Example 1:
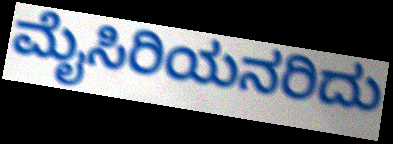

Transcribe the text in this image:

ಮೈಸಿರಿಯನರಿದು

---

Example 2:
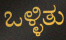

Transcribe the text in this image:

ಒಳ್ಳಿತು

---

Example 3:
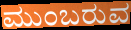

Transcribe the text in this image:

ಮುಂಬರುವ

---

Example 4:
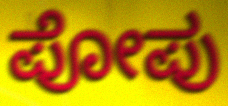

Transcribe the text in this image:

ಪೋಪು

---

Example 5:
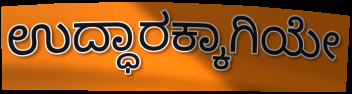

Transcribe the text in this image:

ಉದ್ಧಾರಕ್ಕಾಗಿಯೇ